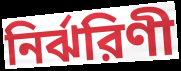
নির্ঝরিণী